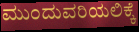
ಮುಂದುವರಿಯಲಿಕ್ಕೆ